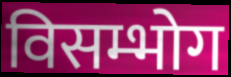
विसम्भोग